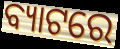
ବ୍ୟାଟରେ